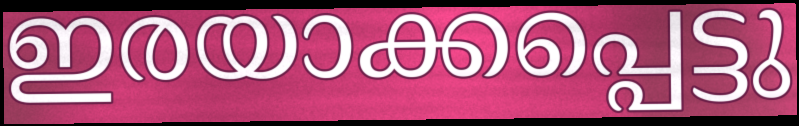
ഇരയാക്കപ്പെട്ടു